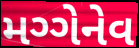
મગ્ગેનેવ